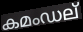
കമംഡല്